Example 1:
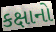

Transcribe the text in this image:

કક્ષાનો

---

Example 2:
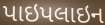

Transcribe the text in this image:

પાઇપલાઇન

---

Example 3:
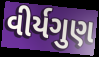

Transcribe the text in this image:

વીર્યગુણ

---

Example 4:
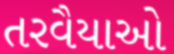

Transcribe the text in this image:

તરવૈયાઓ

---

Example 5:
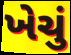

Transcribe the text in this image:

ખેચું